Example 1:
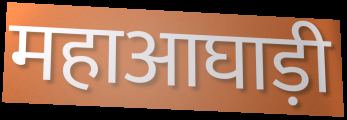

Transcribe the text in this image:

महाआघाड़ी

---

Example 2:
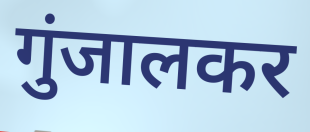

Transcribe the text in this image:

गुंजालकर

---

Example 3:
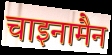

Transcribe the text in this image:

चाइनामैन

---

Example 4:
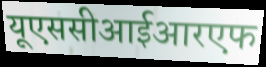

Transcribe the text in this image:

यूएससीआईआरएफ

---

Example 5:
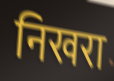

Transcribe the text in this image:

निखरा